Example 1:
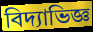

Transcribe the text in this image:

বিদ্যাভিজ্ঞ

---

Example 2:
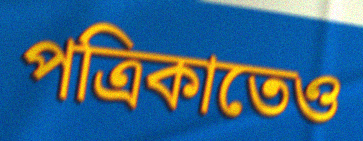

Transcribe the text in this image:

পত্রিকাতেও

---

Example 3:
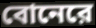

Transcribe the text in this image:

বোনেরে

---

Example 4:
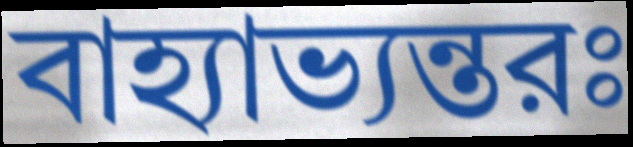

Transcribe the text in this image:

বাহ্যাভ্যন্তরঃ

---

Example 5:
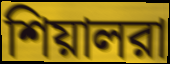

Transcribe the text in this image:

শিয়ালরা